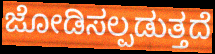
ಜೋಡಿಸಲ್ಪಡುತ್ತದೆ